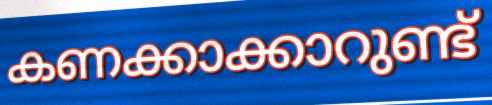
കണക്കാക്കാറുണ്ട്